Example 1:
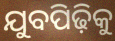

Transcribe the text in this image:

ଯୁବପିଢ଼ିକୁ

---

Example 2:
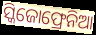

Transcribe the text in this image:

ସ୍କିଜୋଫ୍ରେନିଆ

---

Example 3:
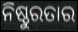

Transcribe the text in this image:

ନିଷ୍ଠୁରତାର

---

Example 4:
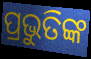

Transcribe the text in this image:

ପ୍ରଭୁତିଙ୍କ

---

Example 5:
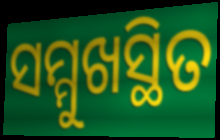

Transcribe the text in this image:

ସମ୍ମୁଖସ୍ଥିତ